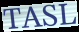
TASL